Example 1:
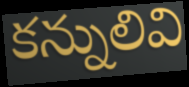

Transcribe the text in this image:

కన్నులివి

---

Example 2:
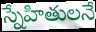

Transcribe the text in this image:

స్నేహితులనే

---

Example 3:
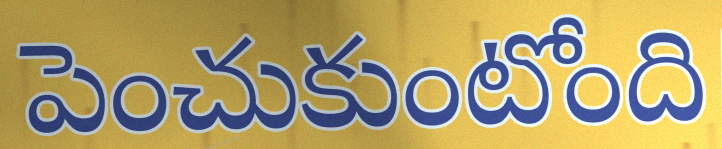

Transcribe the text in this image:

పెంచుకుంటోంది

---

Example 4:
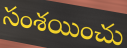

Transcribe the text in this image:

సంశయించు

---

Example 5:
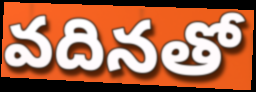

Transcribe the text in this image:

వదినతో